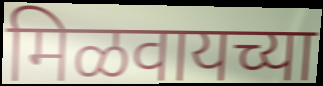
मिळवायच्या